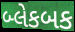
બ્લેકબક